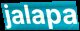
jalapa